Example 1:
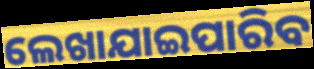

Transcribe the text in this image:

ଲେଖାଯାଇପାରିବ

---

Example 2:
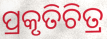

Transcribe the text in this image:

ପ୍ରକୃତିଚିତ୍ର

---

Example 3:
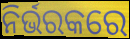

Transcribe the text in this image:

ନିର୍ଭରକରେ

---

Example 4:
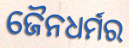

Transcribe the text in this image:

ଜୈନଧର୍ମର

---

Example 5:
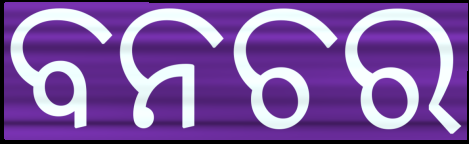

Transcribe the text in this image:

ବନଚର